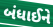
બંધાઈને